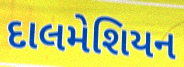
દાલમેશિયન